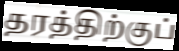
தரத்திற்குப்